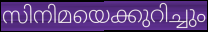
സിനിമയെക്കുറിച്ചും